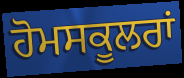
ਹੋਮਸਕੂਲਰਾਂ